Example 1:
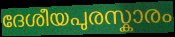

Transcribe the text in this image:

ദേശീയപുരസ്കാരം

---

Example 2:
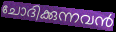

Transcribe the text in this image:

ചോദിക്കുന്നവൻ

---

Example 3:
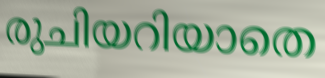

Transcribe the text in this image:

രുചിയറിയാതെ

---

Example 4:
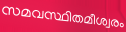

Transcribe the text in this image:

സമവസ്ഥിതമീശ്വരം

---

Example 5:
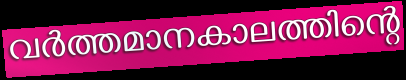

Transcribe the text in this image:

വർത്തമാനകാലത്തിന്റെ